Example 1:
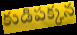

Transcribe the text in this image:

కుడిపక్కన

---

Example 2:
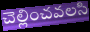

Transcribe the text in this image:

చెల్లించవలసి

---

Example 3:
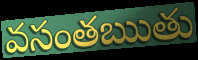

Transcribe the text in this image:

వసంతఋతు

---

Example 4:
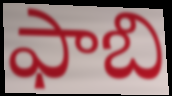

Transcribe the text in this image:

ఫాబి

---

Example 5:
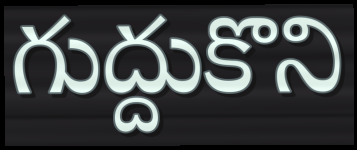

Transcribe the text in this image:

గుద్దుకొని